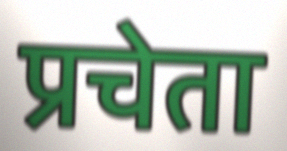
प्रचेता